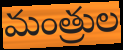
మంత్రుల